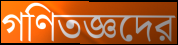
গণিতজ্ঞদের